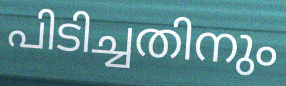
പിടിച്ചതിനും